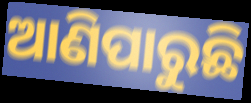
ଆଣିପାରୁଛି